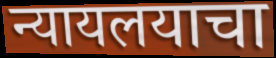
न्यायलयाचा